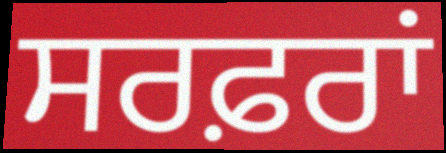
ਸਰਫ਼ਰਾਂ